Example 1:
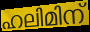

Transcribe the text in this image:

ഹലിമിന്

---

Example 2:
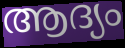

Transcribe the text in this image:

ആദ്യം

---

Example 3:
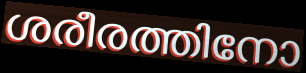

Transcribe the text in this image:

ശരീരത്തിനോ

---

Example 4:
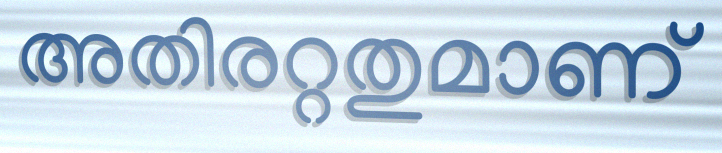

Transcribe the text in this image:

അതിരറ്റതുമാണ്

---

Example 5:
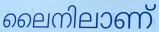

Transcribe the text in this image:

ലൈനിലാണ്